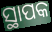
ସ୍ଥାପକ